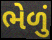
ભેળું